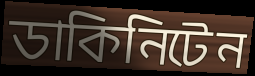
ডাকিনিটেন